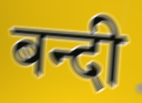
बन्दी